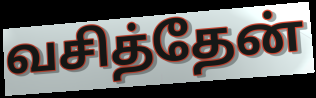
வசித்தேன்